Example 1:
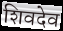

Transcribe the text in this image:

शिवदेव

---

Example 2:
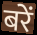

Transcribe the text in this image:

बरें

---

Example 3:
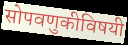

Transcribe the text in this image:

सोपवणुकीविषयी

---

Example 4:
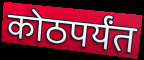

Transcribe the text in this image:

कोठपर्यंत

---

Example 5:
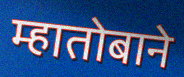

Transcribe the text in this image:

म्हातोबाने